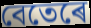
বেতেৰে